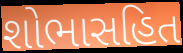
શોભાસહિત